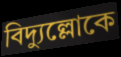
বিদ্যুল্লোকে